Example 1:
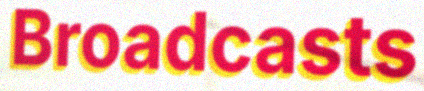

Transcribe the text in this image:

Broadcasts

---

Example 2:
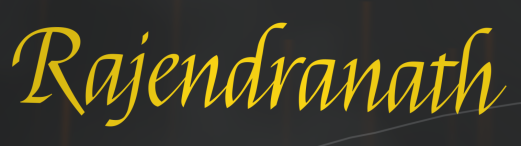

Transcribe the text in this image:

Rajendranath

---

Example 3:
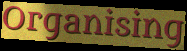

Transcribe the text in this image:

Organising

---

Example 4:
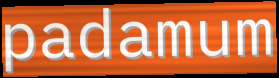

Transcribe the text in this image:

padamum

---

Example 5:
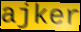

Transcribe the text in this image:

ajker